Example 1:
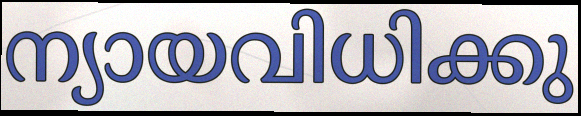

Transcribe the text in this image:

ന്യായവിധിക്കു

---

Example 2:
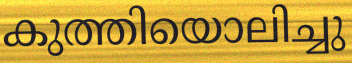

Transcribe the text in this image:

കുത്തിയൊലിച്ചു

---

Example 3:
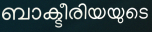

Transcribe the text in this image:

ബാക്ടീരിയയുടെ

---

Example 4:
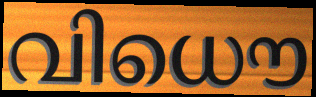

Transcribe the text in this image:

വിധൌ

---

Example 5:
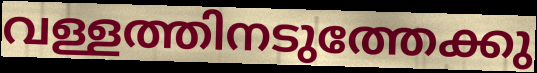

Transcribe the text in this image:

വള്ളത്തിനടുത്തേക്കു